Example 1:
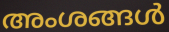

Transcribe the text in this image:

അംശങ്ങൾ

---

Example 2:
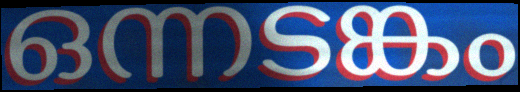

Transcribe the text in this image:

ഒന്നടങ്കം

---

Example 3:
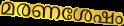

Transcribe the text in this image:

മരണശേഷം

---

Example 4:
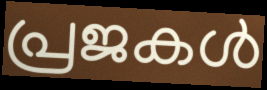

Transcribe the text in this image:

പ്രജകൾ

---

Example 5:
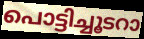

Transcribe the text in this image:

പൊട്ടിച്ചൂടറാ